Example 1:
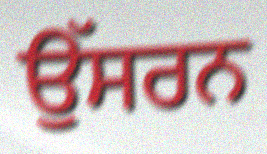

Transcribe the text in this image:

ਉੱਸਰਨ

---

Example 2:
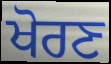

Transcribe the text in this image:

ਖੋਰਣ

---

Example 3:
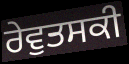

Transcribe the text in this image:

ਰੇਵੁਤਸਕੀ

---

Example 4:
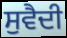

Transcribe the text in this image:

ਸੁਵੈਦੀ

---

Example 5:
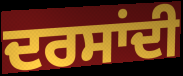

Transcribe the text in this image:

ਦਰਸਾਂਦੀ